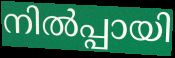
നിൽപ്പായി